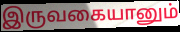
இருவகையானும்